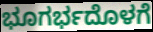
ಭೂಗರ್ಭದೊಳಗೆ